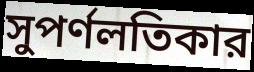
সুপর্ণলতিকার